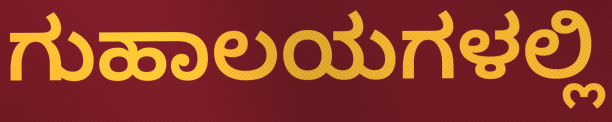
ಗುಹಾಲಯಗಳಲ್ಲಿ